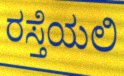
ರಸ್ತೆಯಲಿ